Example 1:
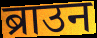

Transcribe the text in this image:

ब्राउन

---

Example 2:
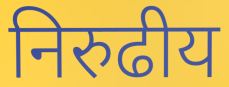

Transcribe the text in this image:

निरुढीय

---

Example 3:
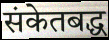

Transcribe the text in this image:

संकेतबद्ध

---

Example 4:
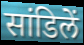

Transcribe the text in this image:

सांडिलें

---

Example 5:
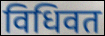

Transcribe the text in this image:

विधिवत